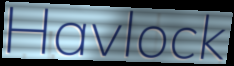
Havlock